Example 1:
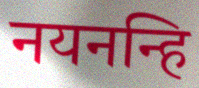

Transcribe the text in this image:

नयनन्हि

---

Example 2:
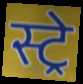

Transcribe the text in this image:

स्ट्रे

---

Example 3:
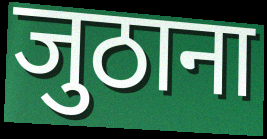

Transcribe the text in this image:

जुठाना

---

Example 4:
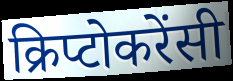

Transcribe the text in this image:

क्रिप्टोकरेंसी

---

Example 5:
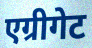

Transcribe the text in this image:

एग्रीगेट